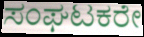
ಸಂಘಟಕರೇ